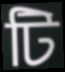
টি